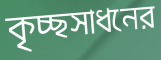
কৃচ্ছসাধনের